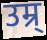
उम्र्